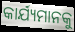
କାର୍ଯ୍ୟମାନକୁ